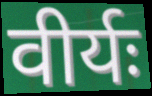
वीर्यः